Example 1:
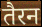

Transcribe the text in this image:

तैरन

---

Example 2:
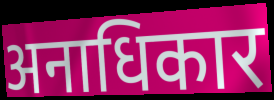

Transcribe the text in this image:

अनाधिकार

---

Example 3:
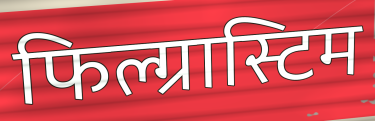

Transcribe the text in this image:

फिल्ग्रास्टिम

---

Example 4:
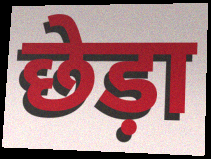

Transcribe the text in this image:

छेड़ा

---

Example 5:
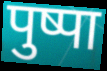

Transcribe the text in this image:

पुष्पा